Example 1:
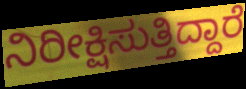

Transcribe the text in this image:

ನಿರೀಕ್ಷಿಸುತ್ತಿದ್ದಾರೆ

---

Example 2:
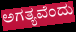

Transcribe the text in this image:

ಅಗತ್ಯವೆಂದು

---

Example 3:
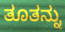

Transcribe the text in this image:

ತೂತನ್ನು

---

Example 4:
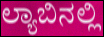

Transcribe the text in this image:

ಲ್ಯಾಬಿನಲ್ಲಿ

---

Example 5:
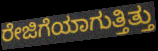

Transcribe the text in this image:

ರೇಜಿಗೆಯಾಗುತ್ತಿತ್ತು